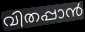
വിതപ്പാൻ